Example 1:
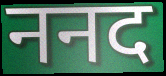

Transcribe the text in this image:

ननद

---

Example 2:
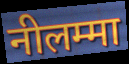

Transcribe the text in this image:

नीलम्मा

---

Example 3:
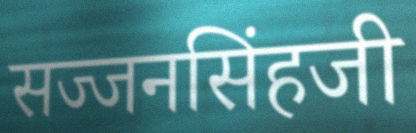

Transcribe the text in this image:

सज्जनसिंहजी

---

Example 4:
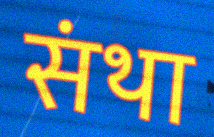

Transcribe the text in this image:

संथा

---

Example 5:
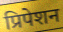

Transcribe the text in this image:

प्रिपेशन